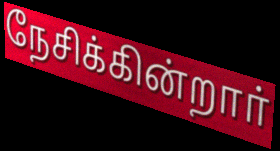
நேசிக்கின்றார்